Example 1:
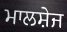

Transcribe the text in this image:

ਮਾਲਸ਼ੇਜ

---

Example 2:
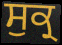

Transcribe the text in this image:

ਸੁਕ੍ਰ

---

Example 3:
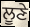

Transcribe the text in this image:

ਲੂਣੇ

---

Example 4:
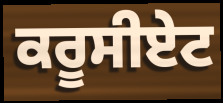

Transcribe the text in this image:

ਕਰੂਸੀਏਟ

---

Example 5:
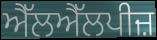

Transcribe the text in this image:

ਐੱਲਐੱਲਪੀਜ਼